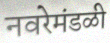
नवरेमंडळी